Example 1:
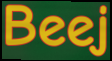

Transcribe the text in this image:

Beej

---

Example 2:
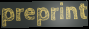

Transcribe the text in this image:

preprint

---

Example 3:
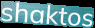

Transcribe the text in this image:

shaktos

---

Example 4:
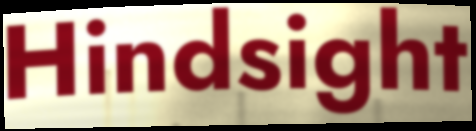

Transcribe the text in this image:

Hindsight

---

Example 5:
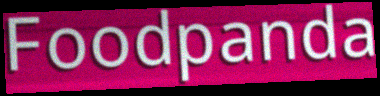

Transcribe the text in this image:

Foodpanda